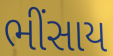
ભીંસાય